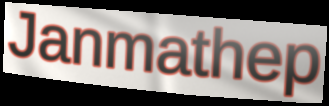
Janmathep